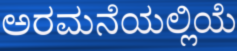
ಅರಮನೆಯಲ್ಲಿಯೆ